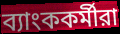
ব্যাংককর্মীরা